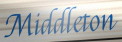
Middleton